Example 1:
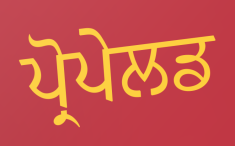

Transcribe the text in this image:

ਪ੍ਰੋਪੇਲਡ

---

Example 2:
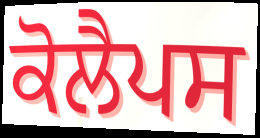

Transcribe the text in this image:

ਕੋਲੈਪਸ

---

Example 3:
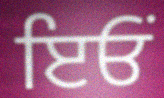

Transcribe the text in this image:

ਇਓਂ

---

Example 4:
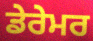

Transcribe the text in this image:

ਡੇਰੇਮਰ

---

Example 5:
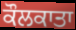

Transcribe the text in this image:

ਕੌਲਕਾਤਾ